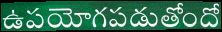
ఉపయోగపడుతోందో